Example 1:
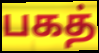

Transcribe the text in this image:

பகத்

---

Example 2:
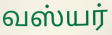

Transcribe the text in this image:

வஸ்யர்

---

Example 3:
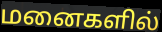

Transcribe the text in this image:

மனைகளில்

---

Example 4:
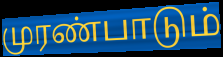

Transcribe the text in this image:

முரண்பாடும்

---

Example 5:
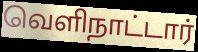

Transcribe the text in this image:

வெளிநாட்டார்